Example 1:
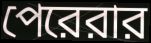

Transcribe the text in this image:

পেরেরার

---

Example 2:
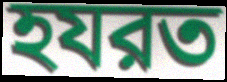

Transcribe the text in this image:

হযরত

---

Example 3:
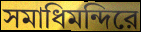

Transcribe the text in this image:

সমাধিমন্দিরে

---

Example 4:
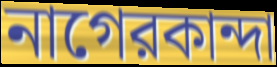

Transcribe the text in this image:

নাগেরকান্দা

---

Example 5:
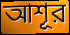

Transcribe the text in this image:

আশূর